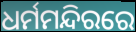
ଧର୍ମମନ୍ଦିରରେ